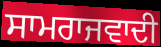
ਸਾਮਰਾਜਵਾਦੀ